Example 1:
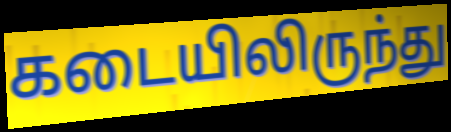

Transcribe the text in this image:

கடையிலிருந்து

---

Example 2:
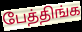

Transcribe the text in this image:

பேத்திங்க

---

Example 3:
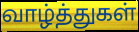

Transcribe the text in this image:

வாழ்த்துகள்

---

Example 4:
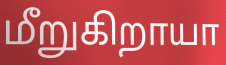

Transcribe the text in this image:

மீறுகிறாயா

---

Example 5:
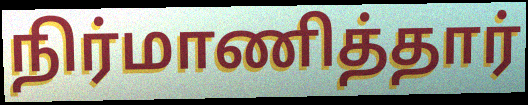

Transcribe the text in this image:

நிர்மாணித்தார்